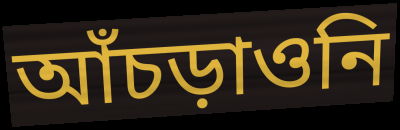
আঁচড়াওনি